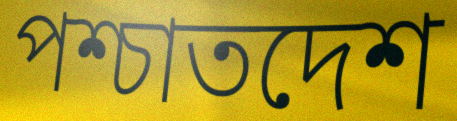
পশ্চাতদেশ